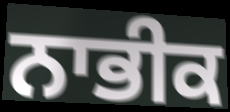
ਨਾਭੀਕ